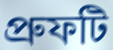
প্রুফটি